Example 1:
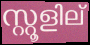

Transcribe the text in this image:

സ്റ്റൂളില്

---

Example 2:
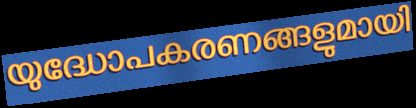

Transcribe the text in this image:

യുദ്ധോപകരണങ്ങളുമായി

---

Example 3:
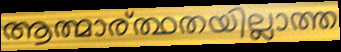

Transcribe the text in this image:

ആത്മാര്ത്ഥതയില്ലാത്ത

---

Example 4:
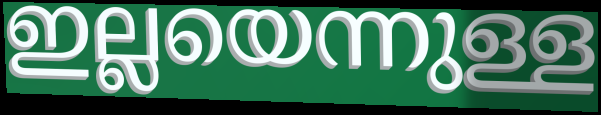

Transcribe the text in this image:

ഇല്ലയെന്നുള്ള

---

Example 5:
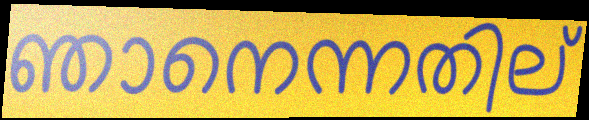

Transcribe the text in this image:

ഞാനെന്നതില്